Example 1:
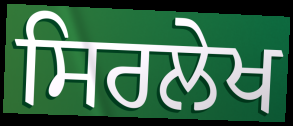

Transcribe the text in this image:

ਸਿਰਲੇਖ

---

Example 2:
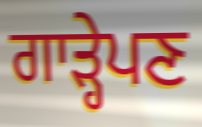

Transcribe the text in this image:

ਗਾੜ੍ਹੇਪਣ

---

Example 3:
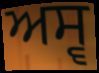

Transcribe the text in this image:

ਅਸ੍ਵ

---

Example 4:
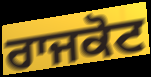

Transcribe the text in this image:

ਰਾਜਕੋਟ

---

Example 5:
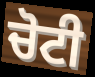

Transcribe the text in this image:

ਚੋਟੀ